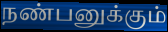
நண்பனுக்கும்